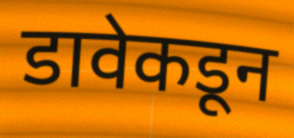
डावेकडून